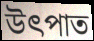
উৎপাত